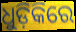
ଧୁଡ଼ିକିରେ